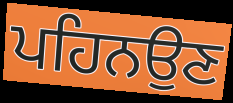
ਪਹਿਨਉਣ